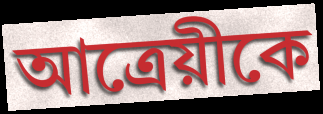
আত্রেয়ীকে